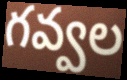
గవ్వల